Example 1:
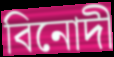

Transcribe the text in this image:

বিনোদী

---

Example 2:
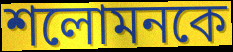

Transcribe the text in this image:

শলোমনকে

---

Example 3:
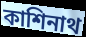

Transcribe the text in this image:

কাশিনাথ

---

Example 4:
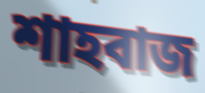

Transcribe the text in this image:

শাহবাজ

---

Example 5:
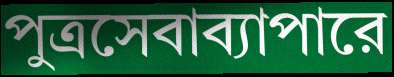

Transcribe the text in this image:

পুত্রসেবাব্যাপারে